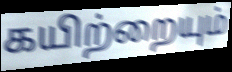
கயிற்றையும்